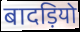
बादड़ियो